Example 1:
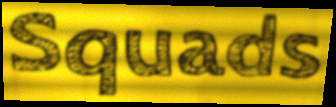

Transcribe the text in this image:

Squads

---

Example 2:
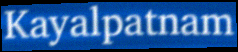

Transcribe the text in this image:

Kayalpatnam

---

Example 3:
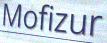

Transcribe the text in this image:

Mofizur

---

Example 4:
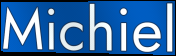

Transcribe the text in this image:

Michiel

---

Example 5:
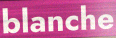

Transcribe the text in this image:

blanche